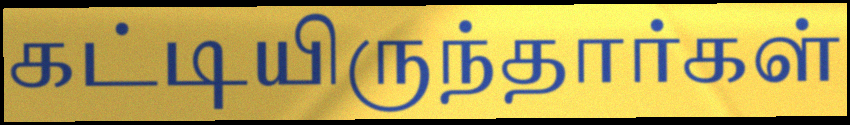
கட்டியிருந்தார்கள்